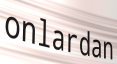
onlardan